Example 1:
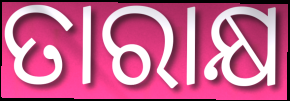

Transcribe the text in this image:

ତାରାକ୍ଷ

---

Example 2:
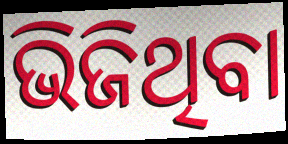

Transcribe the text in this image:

ଭିଜିଥିବା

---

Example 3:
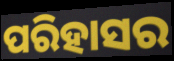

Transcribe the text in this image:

ପରିହାସର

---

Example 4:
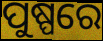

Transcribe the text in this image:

ପୁଷ୍ପରେ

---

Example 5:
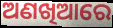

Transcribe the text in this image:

ଅଣଖିଆରେ